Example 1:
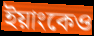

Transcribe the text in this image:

ইয়াংকেও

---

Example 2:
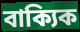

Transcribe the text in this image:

বাক্যিক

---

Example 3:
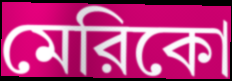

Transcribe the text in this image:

মেরিকো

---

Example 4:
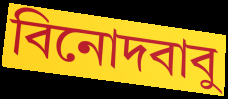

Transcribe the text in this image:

বিনোদবাবু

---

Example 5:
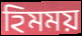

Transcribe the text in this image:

হিমময়